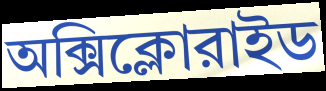
অক্সিক্লোরাইড